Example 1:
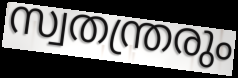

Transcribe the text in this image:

സ്വതന്ത്രരും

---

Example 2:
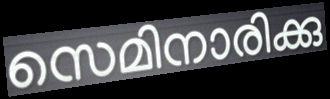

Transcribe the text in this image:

സെമിനാരിക്കു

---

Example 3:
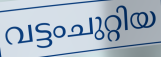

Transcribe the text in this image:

വട്ടംചുറ്റിയ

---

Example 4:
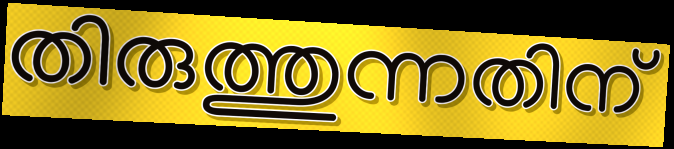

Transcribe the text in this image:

തിരുത്തുന്നതിന്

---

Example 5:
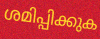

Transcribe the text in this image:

ശമിപ്പിക്കുക